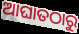
ଆଘାତଠାରୁ